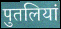
पुतलियां